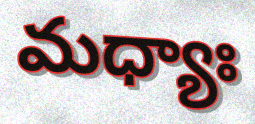
మధ్యాః